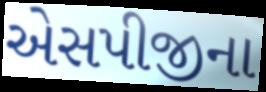
એસપીજીના